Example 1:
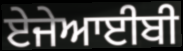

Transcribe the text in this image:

ਏਜੇਆਈਬੀ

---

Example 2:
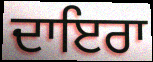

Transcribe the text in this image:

ਦਾਇਰਾ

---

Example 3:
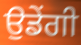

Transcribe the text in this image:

ਉਡੇਂਗੀ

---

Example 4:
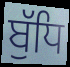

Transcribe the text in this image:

ਬੁੱਧਿ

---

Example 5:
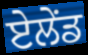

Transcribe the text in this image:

ਏਲੇਂਡ